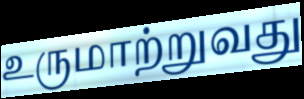
உருமாற்றுவது